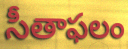
సీతాఫలం